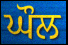
ਘੌਲ